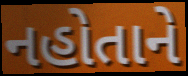
નહોતાને